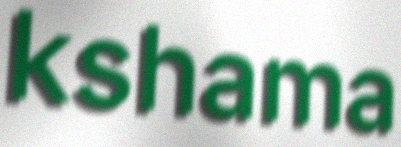
kshama